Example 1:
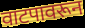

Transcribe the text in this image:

वाटपावरून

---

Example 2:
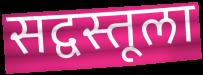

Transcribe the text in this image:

सद्वस्तूला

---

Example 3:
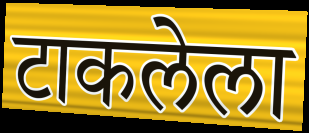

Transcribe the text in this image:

टाकलेला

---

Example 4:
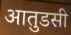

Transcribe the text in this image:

आतुडसी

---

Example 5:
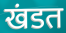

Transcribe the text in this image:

खंडत